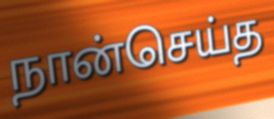
நான்செய்த